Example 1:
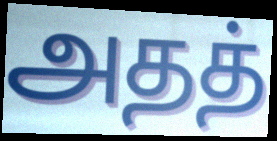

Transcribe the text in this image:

அதத்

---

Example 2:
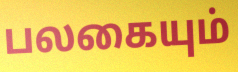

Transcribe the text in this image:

பலகையும்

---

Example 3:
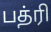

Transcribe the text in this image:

பத்ரி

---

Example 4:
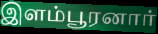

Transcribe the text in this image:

இளம்பூரனார்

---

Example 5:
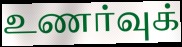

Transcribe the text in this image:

உணர்வுக்